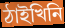
ঠাইখিনি